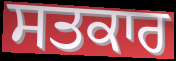
ਸਤਕਾਰ